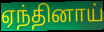
ஏந்தினாய்